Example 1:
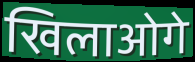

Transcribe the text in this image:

खिलाओगे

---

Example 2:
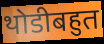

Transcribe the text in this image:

थोडीबहुत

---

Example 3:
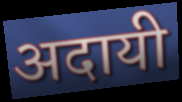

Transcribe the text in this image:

अदायी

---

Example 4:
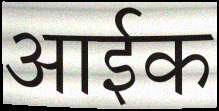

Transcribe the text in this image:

आईक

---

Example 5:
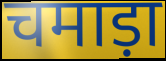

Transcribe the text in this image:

चमाड़ा